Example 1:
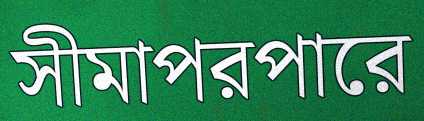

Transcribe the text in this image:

সীমাপরপারে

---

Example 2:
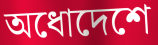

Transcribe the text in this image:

অধোদেশে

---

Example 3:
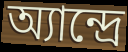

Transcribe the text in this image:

অ্যান্দ্রে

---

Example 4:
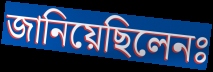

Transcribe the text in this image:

জানিয়েছিলেনঃ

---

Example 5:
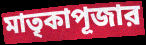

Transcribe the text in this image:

মাতৃকাপূজার